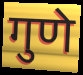
गुणे